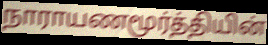
நாராயணமூர்த்தியின்